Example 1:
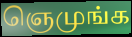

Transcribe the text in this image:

ஞெமுங்க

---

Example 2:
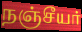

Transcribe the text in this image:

நஞ்சீயர்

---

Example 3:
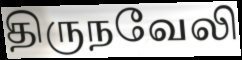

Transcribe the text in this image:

திருநவேலி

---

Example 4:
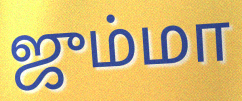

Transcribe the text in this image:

ஜும்மா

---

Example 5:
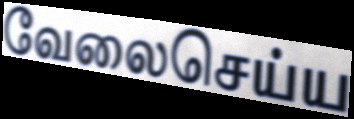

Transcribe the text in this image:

வேலைசெய்ய